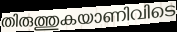
തിരുത്തുകയാണിവിടെ